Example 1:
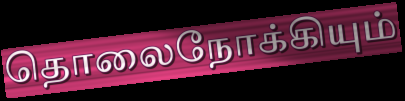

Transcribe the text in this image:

தொலைநோக்கியும்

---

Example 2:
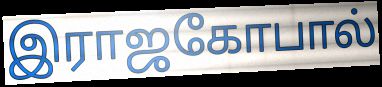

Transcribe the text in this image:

இராஜகோபால்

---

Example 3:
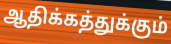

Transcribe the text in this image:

ஆதிக்கத்துக்கும்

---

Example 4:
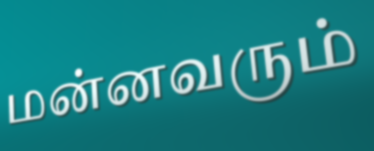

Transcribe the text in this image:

மன்னவரும்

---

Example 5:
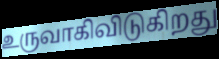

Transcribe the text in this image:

உருவாகிவிடுகிறது